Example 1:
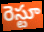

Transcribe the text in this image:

రెస్టూ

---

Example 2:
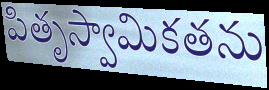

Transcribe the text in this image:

పితృస్వామికతను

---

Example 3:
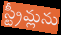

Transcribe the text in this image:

స్ట్రీమ్లను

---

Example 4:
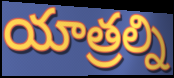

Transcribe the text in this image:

యాత్రల్ని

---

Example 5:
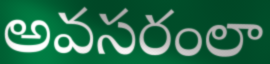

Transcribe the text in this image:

అవసరంలా